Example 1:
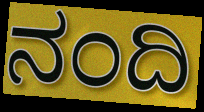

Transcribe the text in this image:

ನಂದಿ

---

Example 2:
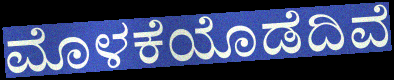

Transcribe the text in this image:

ಮೊಳಕೆಯೊಡೆದಿವೆ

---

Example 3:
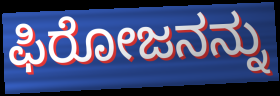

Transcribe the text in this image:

ಫಿರೋಜನನ್ನು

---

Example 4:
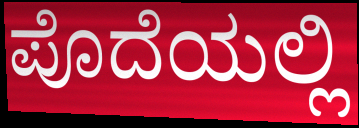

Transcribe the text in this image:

ಪೊದೆಯಲ್ಲಿ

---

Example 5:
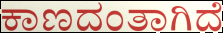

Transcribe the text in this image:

ಕಾಣದಂತಾಗಿದೆ